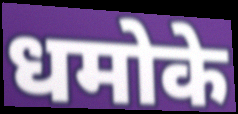
धमोके